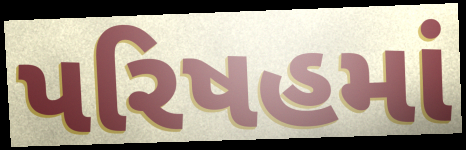
પરિષહમાં